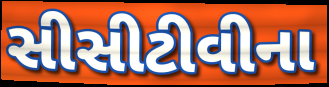
સીસીટીવીના